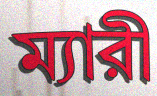
ম্যারী